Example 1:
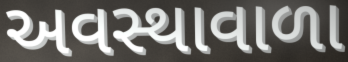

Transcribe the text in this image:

અવસ્થાવાળા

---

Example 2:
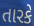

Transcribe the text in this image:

તારકે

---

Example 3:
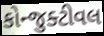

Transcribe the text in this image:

કોન્જુક્ટીવલ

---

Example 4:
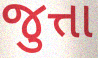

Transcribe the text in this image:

જુત્તા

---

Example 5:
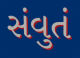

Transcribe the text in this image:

સંવુતં